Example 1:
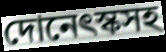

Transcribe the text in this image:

দোনেৎস্কসহ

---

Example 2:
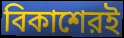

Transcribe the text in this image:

বিকাশেরই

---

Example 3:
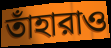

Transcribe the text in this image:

তাঁহারাও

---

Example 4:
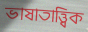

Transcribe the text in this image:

ভাষাতাত্ত্বিক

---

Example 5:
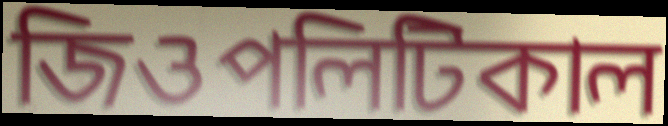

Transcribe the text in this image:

জিওপলিটিকাল